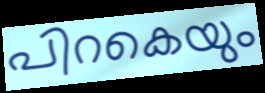
പിറകെയും